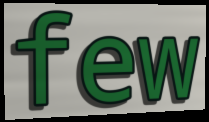
few